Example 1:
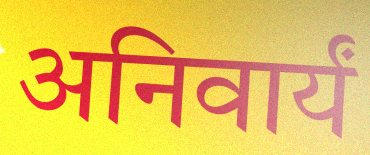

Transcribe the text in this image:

अनिवार्यं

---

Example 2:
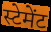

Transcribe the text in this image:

स्टेमेंट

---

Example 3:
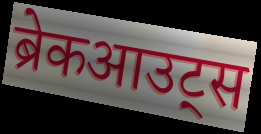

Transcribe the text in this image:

ब्रेकआउट्स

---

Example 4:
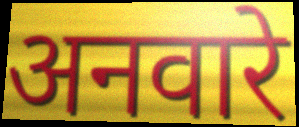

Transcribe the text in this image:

अनवारे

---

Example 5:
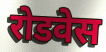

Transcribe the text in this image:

रोडवेस